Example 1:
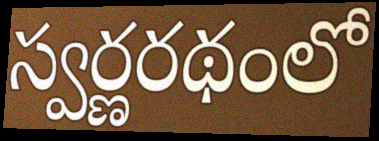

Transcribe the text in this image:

స్వర్ణరథంలో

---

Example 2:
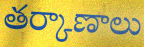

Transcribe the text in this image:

తర్కాణాలు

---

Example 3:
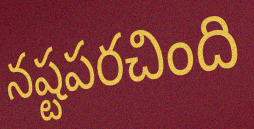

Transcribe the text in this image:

నష్టపరచింది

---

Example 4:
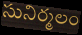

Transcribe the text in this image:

సునిర్మలం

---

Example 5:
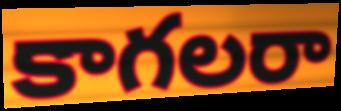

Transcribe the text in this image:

కాగలరా